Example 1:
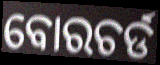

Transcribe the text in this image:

ବୋରଚର୍ଡ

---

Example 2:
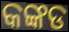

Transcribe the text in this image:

କଙ୍କଡ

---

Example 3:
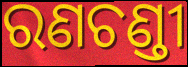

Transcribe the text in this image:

ରଣଚଣ୍ଡୀ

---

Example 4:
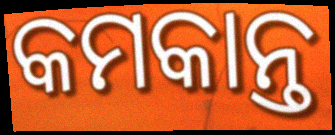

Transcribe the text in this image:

କମକାନ୍ତ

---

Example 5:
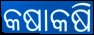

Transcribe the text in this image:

କଷାକଷି